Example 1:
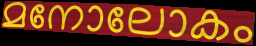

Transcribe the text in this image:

മനോലോകം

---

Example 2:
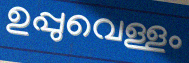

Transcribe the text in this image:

ഉപ്പുവെള്ളം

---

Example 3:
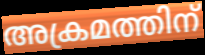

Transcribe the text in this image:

അക്രമത്തിന്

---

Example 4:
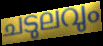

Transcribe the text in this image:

ചടുലവും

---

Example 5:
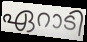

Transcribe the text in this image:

ഏറാടി